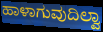
ಹಾಳಾಗುವುದಿಲ್ವಾ